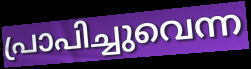
പ്രാപിച്ചുവെന്ന